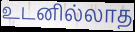
உடனில்லாத